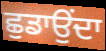
ਛੁਡਾਉਂਦਾ